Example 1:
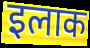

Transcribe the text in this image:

इलाक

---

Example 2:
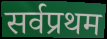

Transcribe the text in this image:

सर्वप्रथम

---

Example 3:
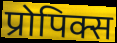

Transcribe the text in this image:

प्रोपिक्स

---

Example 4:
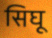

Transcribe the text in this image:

सिघू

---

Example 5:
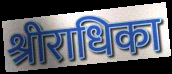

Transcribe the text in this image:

श्रीराधिका